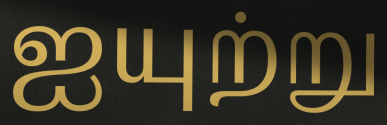
ஐயுற்று